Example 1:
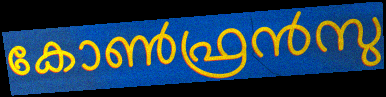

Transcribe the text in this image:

കോൺഫ്രൻസു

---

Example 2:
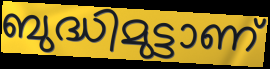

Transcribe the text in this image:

ബുദ്ധിമുട്ടാണ്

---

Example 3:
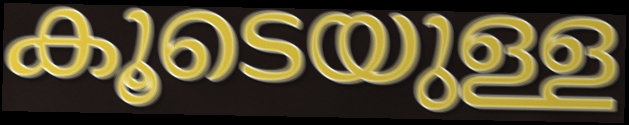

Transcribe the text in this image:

കൂടെയുള്ള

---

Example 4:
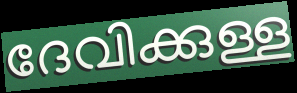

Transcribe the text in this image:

ദേവിക്കുള്ള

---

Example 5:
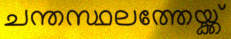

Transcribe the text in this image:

ചന്തസ്ഥലത്തേയ്ക്ക്